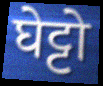
घेट्टो